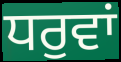
ਧਰੁਵਾਂ